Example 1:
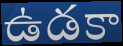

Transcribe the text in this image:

ఉడకా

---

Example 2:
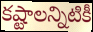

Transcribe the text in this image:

కష్టాలన్నిటికీ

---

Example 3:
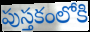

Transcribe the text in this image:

పుస్తకంలోకి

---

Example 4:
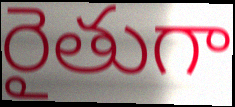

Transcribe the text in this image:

రైతుగా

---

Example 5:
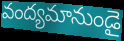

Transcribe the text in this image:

వంద్యమానుండై